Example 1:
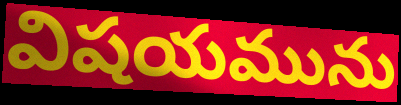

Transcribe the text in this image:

విషయమును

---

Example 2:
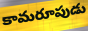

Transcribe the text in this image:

కామరూపుడు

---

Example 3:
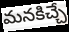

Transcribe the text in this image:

మనకిచ్చే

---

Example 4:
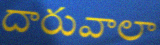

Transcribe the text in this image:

దారువాలా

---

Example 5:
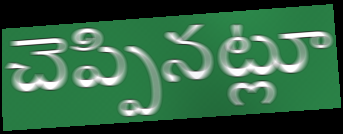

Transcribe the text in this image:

చెప్పినట్లూ